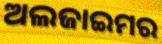
ଅଲଜାଇମର